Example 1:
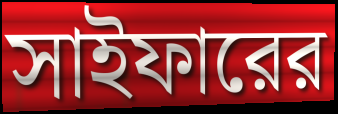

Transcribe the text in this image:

সাইফারের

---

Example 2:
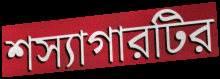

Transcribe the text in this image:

শস্যাগারটির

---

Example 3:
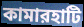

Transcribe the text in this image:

কামারহাটি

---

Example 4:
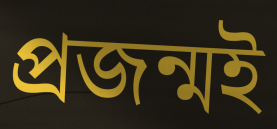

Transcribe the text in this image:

প্রজন্মই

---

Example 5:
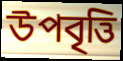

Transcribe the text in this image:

উপবৃত্তি